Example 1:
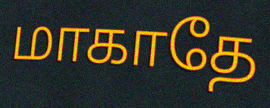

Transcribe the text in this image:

மாகாதே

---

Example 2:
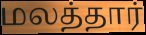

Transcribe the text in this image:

மலத்தார்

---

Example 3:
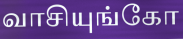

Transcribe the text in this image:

வாசியுங்கோ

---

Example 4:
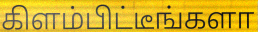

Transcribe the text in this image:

கிளம்பிட்டீங்களா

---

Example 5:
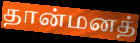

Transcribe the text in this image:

தான்மனத்